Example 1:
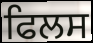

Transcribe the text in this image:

ਫਿਲਸ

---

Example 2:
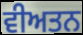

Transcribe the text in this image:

ਵੀਅਤਨ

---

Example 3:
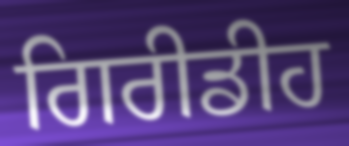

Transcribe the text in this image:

ਗਿਰੀਡੀਹ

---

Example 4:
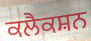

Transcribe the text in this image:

ਕਲੈਕਸ਼ਨ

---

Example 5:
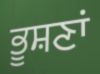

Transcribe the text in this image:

ਭੂਸ਼ਣਾਂ